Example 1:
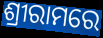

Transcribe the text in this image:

ଶ୍ରୀରାମରେ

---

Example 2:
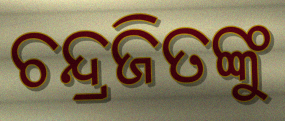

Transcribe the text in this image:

ଚନ୍ଦ୍ରଜିତଙ୍କୁ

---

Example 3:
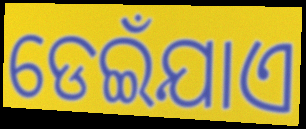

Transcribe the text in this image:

ଡେଇଁଯାଏ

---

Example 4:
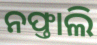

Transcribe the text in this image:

ନଫ୍ତାଲି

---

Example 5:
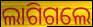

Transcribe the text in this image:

ଲାଗିଗଲେ